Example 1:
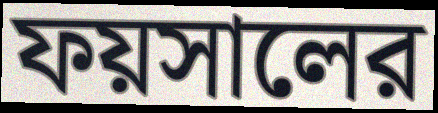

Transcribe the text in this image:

ফয়সালের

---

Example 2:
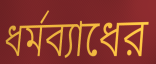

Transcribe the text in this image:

ধর্মব্যাধের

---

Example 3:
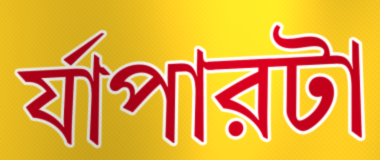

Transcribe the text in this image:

র্যাপারটা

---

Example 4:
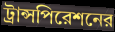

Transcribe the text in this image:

ট্রান্সপিরেশনের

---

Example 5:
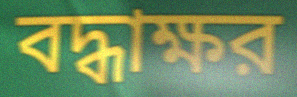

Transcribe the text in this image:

বদ্ধাক্ষর